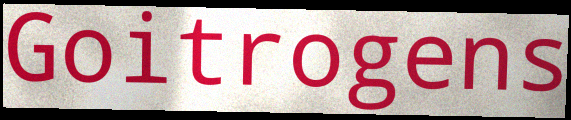
Goitrogens